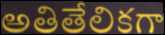
అతితేలికగా